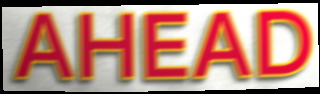
AHEAD